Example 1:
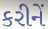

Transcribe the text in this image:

કરીનેં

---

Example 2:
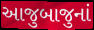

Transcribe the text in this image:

આજુબાજુનાં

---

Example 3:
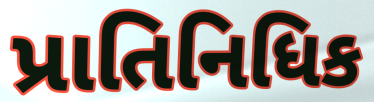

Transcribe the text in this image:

પ્રાતિનિધિક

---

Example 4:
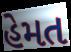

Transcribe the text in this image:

હેમત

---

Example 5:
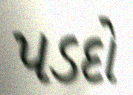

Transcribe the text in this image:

પડદો